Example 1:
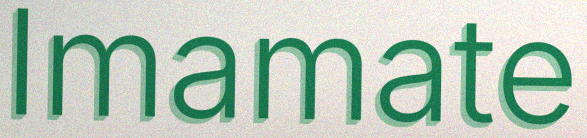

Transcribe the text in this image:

Imamate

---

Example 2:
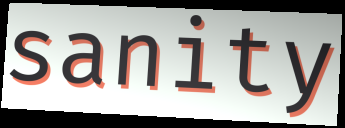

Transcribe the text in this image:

sanity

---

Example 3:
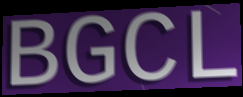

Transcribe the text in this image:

BGCL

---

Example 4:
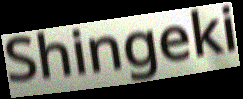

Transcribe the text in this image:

Shingeki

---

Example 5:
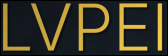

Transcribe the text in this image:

LVPEI